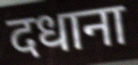
दधाना